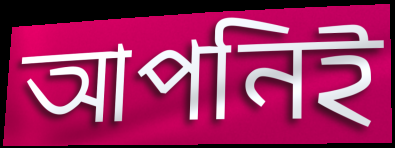
আপনিই